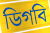
ডিগবি